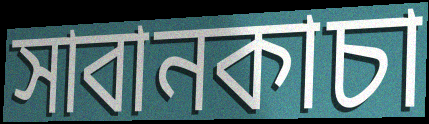
সাবানকাচা